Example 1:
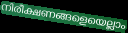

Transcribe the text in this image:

നിരീക്ഷണങ്ങളെയെല്ലാം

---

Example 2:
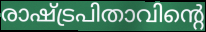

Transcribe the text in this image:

രാഷ്ട്രപിതാവിന്റെ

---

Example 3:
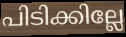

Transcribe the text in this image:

പിടിക്കില്ലേ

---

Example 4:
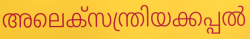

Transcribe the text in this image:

അലെക്സന്ത്രിയക്കപ്പൽ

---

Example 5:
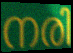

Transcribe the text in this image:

നരി